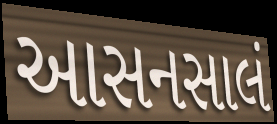
આસનસાલં